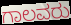
ಗಾಲವರು